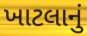
ખાટલાનું